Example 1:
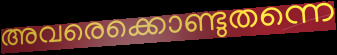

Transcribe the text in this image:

അവരെക്കൊണ്ടുതന്നെ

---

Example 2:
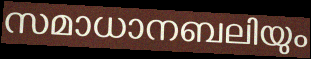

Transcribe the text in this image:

സമാധാനബലിയും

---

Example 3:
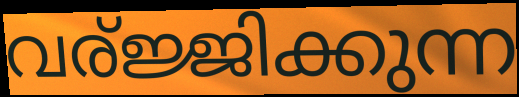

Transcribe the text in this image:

വര്ജ്ജിക്കുന്ന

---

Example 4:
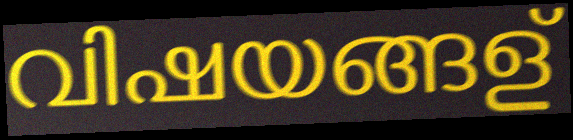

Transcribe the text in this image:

വിഷയങ്ങള്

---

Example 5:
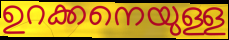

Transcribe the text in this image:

ഉറക്കനെയുള്ള